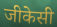
जीकेसी